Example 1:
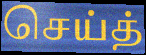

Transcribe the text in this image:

செய்த்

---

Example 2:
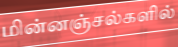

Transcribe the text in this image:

மின்னஞ்சல்களில்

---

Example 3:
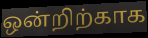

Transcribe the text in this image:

ஒன்றிற்காக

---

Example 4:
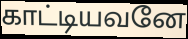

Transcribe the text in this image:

காட்டியவனே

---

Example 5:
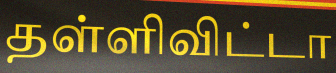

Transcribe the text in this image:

தள்ளிவிட்டா